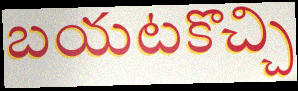
బయటకొచ్చి